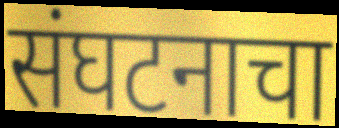
संघटनाचा